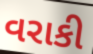
વરાકી